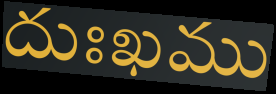
దుఃఖము